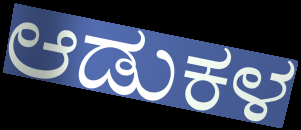
ಆಡುಕಳ